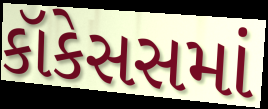
કૉકેસસમાં